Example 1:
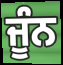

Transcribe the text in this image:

ਜੂੰਨ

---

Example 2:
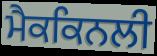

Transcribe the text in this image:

ਮੈਕਕਿਨਲੀ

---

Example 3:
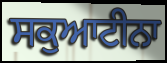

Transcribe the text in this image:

ਸਕੁਆਟੀਨਾ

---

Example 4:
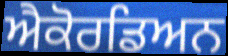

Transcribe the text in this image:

ਐਕੋਰਡਿਅਨ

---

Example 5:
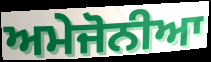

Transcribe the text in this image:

ਅਮੇਜੋਨੀਆ